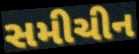
સમીચીન